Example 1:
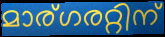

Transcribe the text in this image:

മാര്ഗരറ്റിന്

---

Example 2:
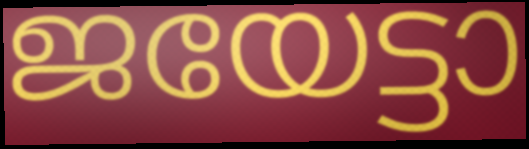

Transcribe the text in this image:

ജയേട്ടാ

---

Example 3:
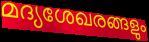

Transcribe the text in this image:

മദ്യശേഖരങ്ങളും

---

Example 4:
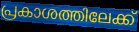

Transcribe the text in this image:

പ്രകാശത്തിലേക്ക്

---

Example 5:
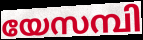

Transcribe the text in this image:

യേസമ്പി